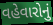
વહેવારોનું